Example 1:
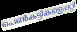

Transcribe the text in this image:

പെൺകുട്ടികളെപ്പറ്റി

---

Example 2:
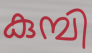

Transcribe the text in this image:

കുമ്പി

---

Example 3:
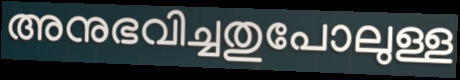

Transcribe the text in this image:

അനുഭവിച്ചതുപോലുള്ള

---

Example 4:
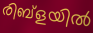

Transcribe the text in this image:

രിബ്ളയിൽ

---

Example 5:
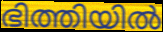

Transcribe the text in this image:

ഭിത്തിയിൽ